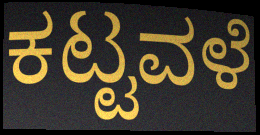
ಕಟ್ಟವಳೆ